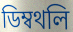
ডিম্বথলি